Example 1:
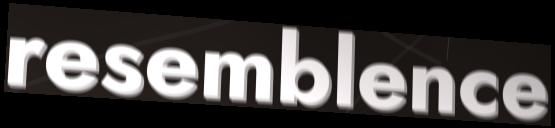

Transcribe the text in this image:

resemblence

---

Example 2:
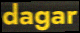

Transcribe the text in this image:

dagar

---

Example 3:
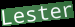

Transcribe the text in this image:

Lester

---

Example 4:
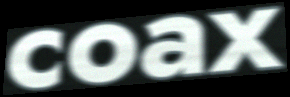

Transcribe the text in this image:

coax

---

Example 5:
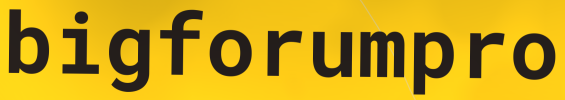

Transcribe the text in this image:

bigforumpro